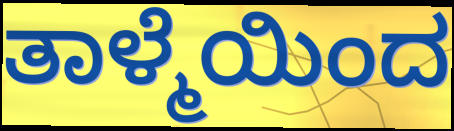
ತಾಳ್ಮೆಯಿಂದ